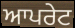
ਆਪਰੇਟ